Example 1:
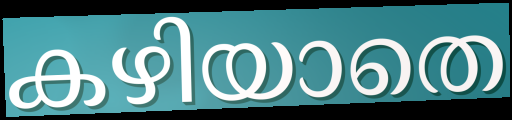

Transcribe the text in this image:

കഴിയാതെ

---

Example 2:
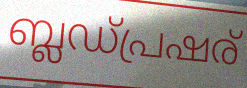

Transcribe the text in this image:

ബ്ലഡ്പ്രഷര്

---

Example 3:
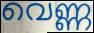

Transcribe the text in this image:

വെണ്ണ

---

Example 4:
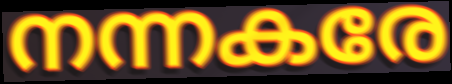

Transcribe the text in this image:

നന്നകരേ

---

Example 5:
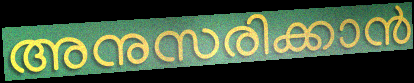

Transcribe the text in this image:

അനുസരിക്കാൻ